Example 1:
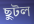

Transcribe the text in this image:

ছুটল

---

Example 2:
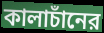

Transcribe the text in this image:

কালাচাঁনের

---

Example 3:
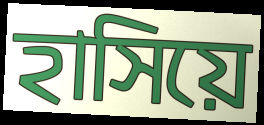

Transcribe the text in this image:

হাসিয়ে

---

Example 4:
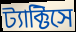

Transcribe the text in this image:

ট্যাক্টিসে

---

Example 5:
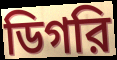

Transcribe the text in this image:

ডিগরি